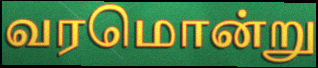
வரமொன்று